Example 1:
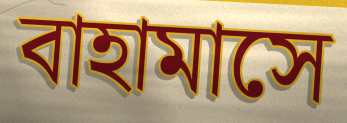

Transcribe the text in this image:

বাহামাসে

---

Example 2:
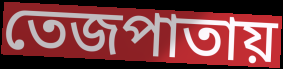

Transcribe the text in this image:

তেজপাতায়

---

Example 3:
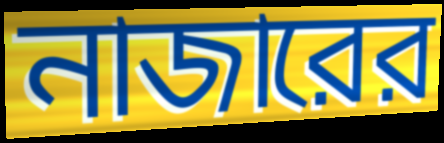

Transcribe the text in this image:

নাজারের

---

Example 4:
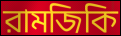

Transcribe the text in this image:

রামজিকি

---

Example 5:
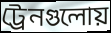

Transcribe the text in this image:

ট্রেনগুলোয়